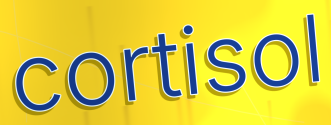
cortisol